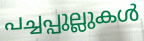
പച്ചപ്പുല്ലുകൾ